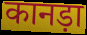
कानड़ा